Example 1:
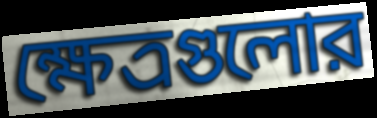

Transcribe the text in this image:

ক্ষেত্রগুলোর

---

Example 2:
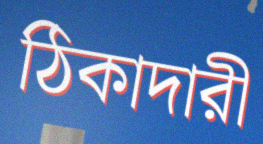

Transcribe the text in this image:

ঠিকাদারী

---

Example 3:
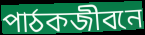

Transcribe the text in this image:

পাঠকজীবনে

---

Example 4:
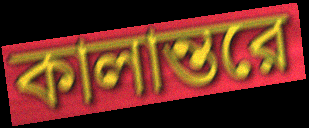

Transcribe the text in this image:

কালান্তরে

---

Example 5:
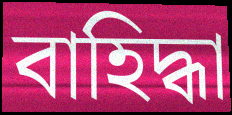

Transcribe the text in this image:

বাহিদ্ধা